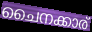
ചൈനക്കാര്